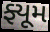
ફ્યૂમ